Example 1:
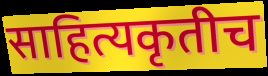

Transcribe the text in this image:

साहित्यकृतीच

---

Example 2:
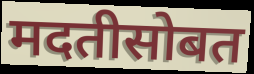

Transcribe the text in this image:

मदतीसोबत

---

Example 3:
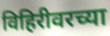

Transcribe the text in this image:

विहिरीवरच्या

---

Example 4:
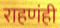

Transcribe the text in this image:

राहणंही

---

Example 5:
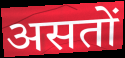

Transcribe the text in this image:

असतों